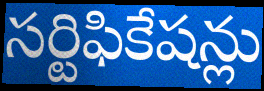
సర్టిఫికేషన్లు